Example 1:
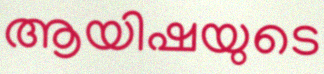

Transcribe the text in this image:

ആയിഷയുടെ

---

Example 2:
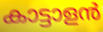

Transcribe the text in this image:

കാട്ടാളൻ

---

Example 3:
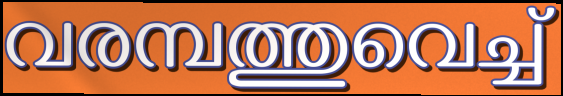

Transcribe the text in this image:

വരമ്പത്തുവെച്ച്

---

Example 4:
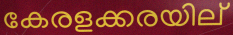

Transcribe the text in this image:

കേരളക്കരയില്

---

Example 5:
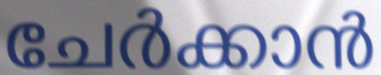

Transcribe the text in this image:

ചേർക്കാൻ